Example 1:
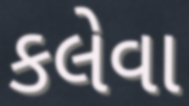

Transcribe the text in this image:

કલેવા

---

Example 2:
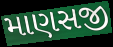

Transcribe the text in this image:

માણસજી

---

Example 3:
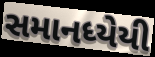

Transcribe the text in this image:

સમાનધ્યેયી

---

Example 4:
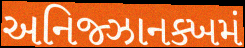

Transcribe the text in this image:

અનિજ્ઝાનક્ખમં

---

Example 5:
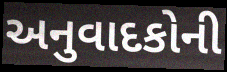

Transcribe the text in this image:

અનુવાદકોની